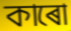
কাৰো